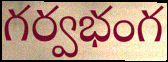
గర్వభంగ